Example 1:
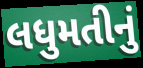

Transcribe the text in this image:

લધુમતીનું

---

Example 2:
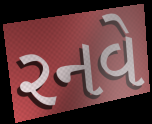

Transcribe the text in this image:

રનવે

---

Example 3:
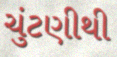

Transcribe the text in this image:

ચુંટણીથી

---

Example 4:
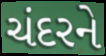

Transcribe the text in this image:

ચંદરને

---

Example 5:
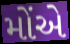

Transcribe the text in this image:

મોંએ